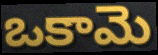
ఒకామె